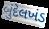
બુંદેલખંડ